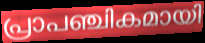
പ്രാപഞ്ചികമായി